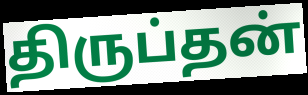
திருப்தன்